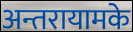
अन्तरायामके